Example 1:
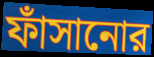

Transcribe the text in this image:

ফাঁসানোর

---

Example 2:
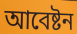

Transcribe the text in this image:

আবেষ্টন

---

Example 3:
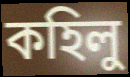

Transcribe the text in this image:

কহিলু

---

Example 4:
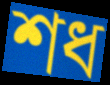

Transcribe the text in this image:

শধ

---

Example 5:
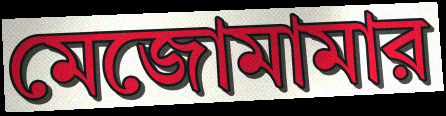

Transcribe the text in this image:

মেজোমামার